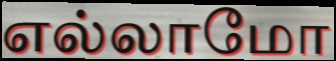
எல்லாமோ